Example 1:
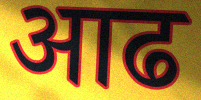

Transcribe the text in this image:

आढ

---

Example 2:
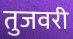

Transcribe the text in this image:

तुजवरी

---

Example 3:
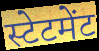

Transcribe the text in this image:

स्टेटमेंट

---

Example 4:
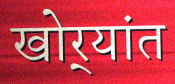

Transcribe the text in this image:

खोर्यांत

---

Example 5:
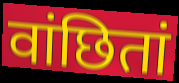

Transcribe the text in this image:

वांछितां